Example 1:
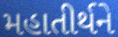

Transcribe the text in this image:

મહાતીર્થને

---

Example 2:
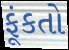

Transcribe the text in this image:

ફૂંકતો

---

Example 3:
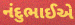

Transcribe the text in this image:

નંદુભાઈએ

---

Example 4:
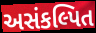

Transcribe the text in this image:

અસંકલ્પિત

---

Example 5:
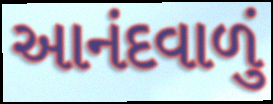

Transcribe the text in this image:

આનંદવાળું